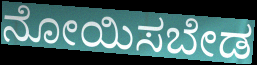
ನೋಯಿಸಬೇಡ